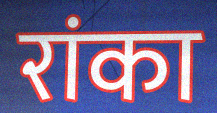
रांका